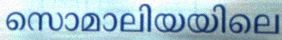
സൊമാലിയയിലെ